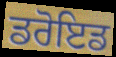
ਡਰੋਇਡ